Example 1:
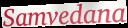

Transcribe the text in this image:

Samvedana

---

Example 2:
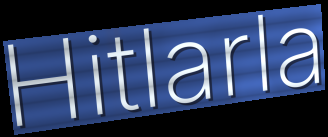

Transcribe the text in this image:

Hitlarla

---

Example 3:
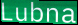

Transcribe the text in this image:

Lubna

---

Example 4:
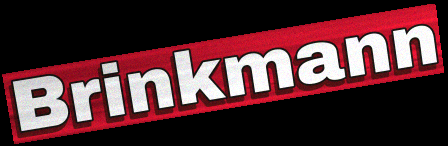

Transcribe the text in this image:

Brinkmann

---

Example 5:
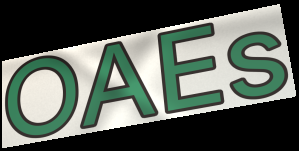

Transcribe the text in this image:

OAEs